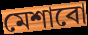
মেশাবো